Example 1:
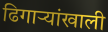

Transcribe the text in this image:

ढिगाऱ्यांखाली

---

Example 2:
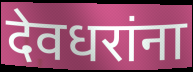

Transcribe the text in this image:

देवधरांना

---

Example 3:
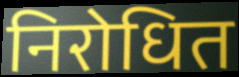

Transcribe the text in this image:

निरोधित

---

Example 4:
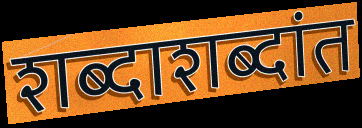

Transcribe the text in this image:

शब्दाशब्दांत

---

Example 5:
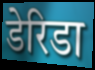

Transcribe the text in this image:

डेरिडा